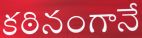
కఠినంగానే